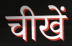
चीखें